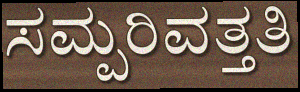
ಸಮ್ಪರಿವತ್ತತಿ